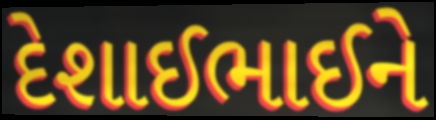
દેશાઈભાઈને